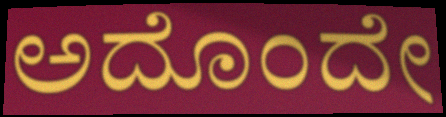
ಅದೊಂದೇ